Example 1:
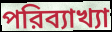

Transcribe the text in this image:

পরিব্যাখ্যা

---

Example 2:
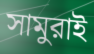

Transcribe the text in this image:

সামুরাই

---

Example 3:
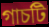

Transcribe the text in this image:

গাচটি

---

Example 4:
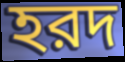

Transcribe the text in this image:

হরদ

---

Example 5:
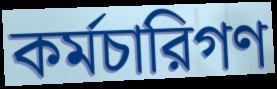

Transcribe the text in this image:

কর্মচারিগণ